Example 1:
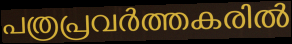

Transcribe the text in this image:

പത്രപ്രവർത്തകരിൽ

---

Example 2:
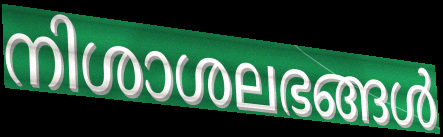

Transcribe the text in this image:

നിശാശലഭങ്ങൾ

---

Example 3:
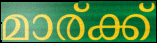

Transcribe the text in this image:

മാര്ക്ക്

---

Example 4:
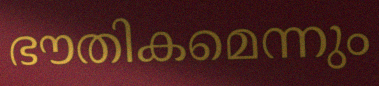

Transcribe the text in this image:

ഭൗതികമെന്നും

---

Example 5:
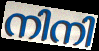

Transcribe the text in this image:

നിനി